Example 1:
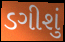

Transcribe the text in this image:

ડગીશું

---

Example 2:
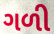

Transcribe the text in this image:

ગળી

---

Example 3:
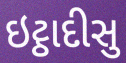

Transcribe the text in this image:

ઇટ્ઠાદીસુ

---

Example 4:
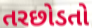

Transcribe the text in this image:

તરછોડતો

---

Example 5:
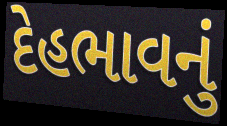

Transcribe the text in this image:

દેહભાવનું